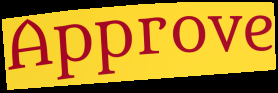
Approve